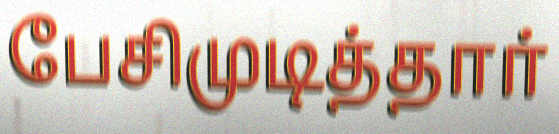
பேசிமுடித்தார்